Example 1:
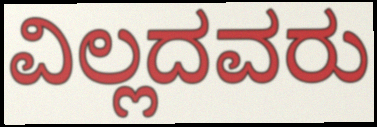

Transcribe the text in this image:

ವಿಲ್ಲದವರು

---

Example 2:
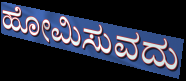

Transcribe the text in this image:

ಹೋಮಿಸುವದು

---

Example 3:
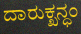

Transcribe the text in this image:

ದಾರುಕ್ಖನ್ಧಂ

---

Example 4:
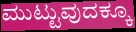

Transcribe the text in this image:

ಮುಟ್ಟುವುದಕ್ಕೂ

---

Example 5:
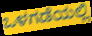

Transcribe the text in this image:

ಒಳಗಡೆಯಲ್ಲಿ